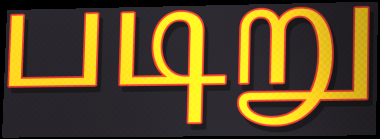
படிறு